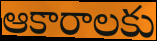
ఆకారాలకు